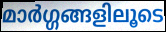
മാർഗ്ഗങ്ങളിലൂടെ